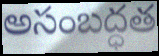
అసంబద్ధత